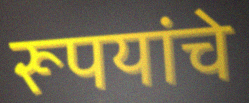
रूपयांचे